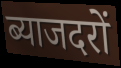
ब्याजदरों